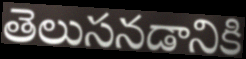
తెలుసనడానికి